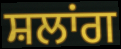
ਸ਼ਲਾਂਗ